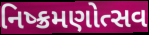
નિષ્ક્રમણોત્સવ